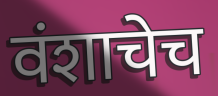
वंशाचेच